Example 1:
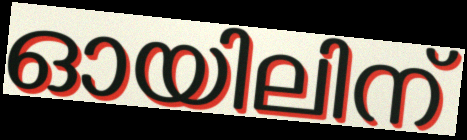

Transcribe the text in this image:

ഓയിലിന്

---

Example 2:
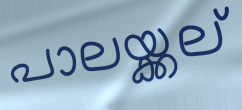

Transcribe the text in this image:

പാലയ്ക്കല്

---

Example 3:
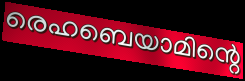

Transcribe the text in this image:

രെഹബെയാമിന്റെ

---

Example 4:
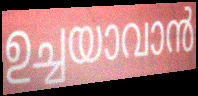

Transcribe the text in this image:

ഉച്ചയാവാൻ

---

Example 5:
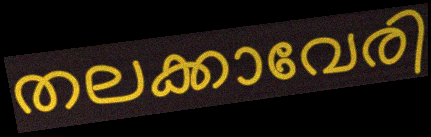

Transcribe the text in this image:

തലക്കാവേരി